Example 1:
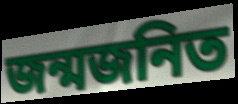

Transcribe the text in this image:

জন্মজনিত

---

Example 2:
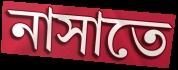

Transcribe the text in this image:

নাসাতে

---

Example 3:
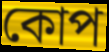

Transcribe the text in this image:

কোপ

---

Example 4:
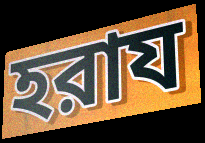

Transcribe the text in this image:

হরায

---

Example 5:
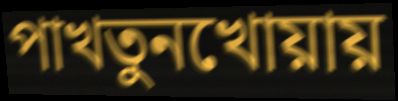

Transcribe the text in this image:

পাখতুনখোয়ায়